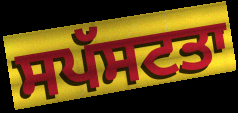
ਸਪੱਸਟਤਾ